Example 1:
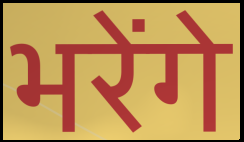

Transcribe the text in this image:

भरेंगे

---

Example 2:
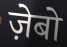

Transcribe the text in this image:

ज़ेबो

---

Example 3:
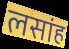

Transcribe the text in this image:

लसांह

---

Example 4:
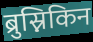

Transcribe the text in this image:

ब्रुस्निकिन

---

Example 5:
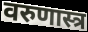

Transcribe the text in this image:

वरुणास्त्र